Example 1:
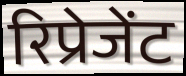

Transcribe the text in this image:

रिप्रेजेंट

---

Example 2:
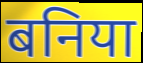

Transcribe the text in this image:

बनिया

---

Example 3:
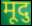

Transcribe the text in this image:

मूदु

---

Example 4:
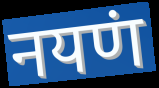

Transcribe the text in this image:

नयणं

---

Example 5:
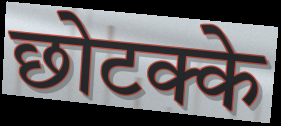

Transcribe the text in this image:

छोटक्के